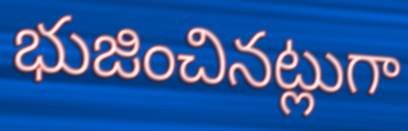
భుజించినట్లుగా